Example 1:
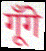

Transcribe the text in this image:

गूँगे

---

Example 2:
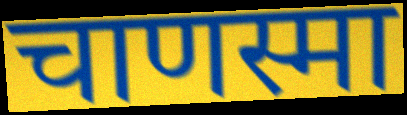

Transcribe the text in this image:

चाणस्मा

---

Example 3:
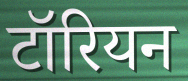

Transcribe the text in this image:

टॉरियन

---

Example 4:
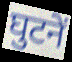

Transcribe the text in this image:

घुटनें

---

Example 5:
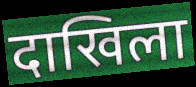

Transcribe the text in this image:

दाखिला